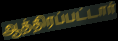
ஆத்திரப்பட்டார்